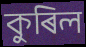
কুৰিল